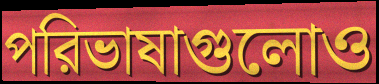
পরিভাষাগুলোও